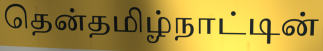
தென்தமிழ்நாட்டின்